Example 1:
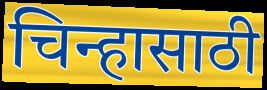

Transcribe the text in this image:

चिन्हासाठी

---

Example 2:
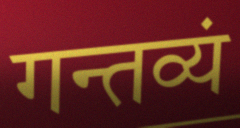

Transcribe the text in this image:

गन्तव्यं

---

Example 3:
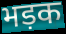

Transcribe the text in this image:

भड़क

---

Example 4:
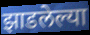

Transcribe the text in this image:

झाडलेल्या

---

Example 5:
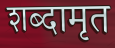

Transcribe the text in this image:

शब्दामृत